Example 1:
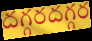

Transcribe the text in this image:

దగ్గరదగ్గర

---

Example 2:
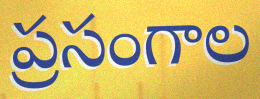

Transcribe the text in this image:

ప్రసంగాల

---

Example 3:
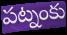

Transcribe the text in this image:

పట్నంకు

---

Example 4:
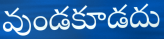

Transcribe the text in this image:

వుండకూడదు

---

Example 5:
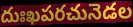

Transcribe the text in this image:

దుఃఖపరచునెడల